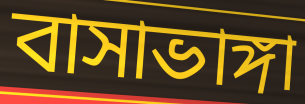
বাসাভাঙ্গা